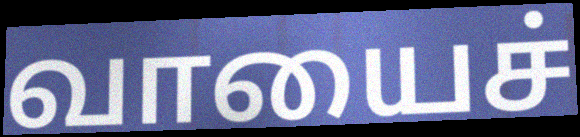
வாயைச்